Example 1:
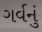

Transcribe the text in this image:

ગર્વનું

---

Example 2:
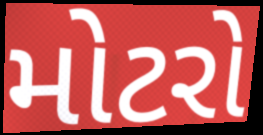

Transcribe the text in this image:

મોટરો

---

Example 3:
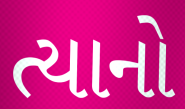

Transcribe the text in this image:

ત્યાનો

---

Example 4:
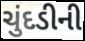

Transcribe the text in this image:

ચુંદડીની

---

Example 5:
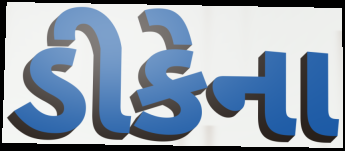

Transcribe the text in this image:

ડીકેના